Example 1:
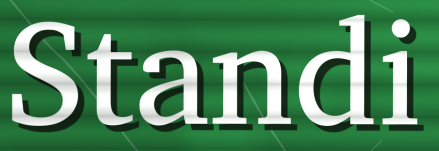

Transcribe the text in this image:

Standi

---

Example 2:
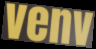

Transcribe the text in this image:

venv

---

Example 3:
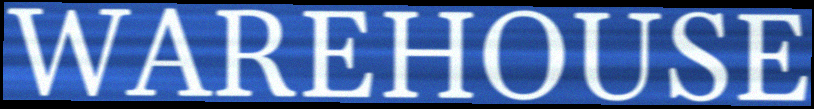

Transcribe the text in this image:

WAREHOUSE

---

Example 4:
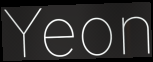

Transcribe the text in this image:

Yeon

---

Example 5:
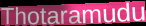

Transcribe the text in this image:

Thotaramudu